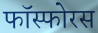
फॉस्फोरस